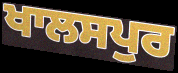
ਖਾਲਸਪੁਰ